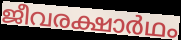
ജീവരക്ഷാർഥം